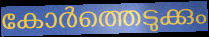
കോർത്തെടുക്കും